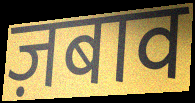
ज़बाव